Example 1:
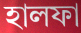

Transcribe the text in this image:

হালফা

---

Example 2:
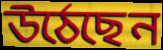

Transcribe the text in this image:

উঠেছেন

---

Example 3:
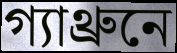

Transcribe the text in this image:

গ্যাথ্রুনে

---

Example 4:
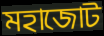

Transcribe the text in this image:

মহাজোট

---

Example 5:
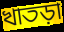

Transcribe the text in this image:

খাতড়া